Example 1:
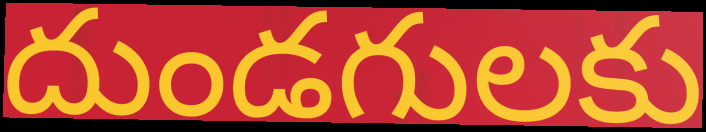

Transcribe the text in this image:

దుండగులకు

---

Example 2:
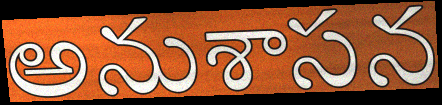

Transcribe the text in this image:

అనుశాసన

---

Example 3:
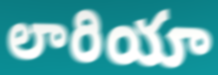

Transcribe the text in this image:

లారియా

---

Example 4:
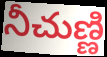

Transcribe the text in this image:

నీచుణ్ణి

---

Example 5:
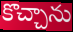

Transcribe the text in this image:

కొచ్చాను